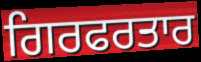
ਗਿਰਫਰਤਾਰ